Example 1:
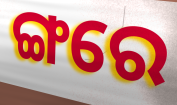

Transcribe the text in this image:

ଙ୍ଗରେ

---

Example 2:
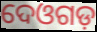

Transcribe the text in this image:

ଦେଓଗଡ଼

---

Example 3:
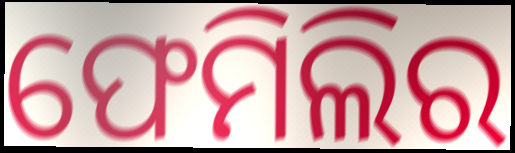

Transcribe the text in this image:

ଫେମିଲିର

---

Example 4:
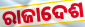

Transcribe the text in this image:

ରାଜାଦେଶ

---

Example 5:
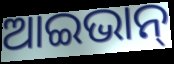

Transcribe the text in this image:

ଆଇଭାନ୍